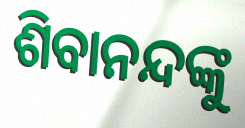
ଶିବାନନ୍ଦଙ୍କୁ